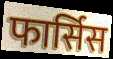
फार्सिस